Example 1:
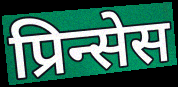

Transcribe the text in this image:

प्रिन्सेस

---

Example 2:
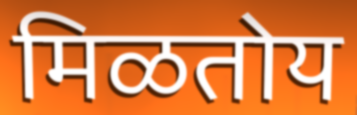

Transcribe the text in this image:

मिळतोय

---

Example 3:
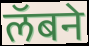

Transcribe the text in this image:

लॅबने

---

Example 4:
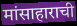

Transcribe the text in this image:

मांसाहाराची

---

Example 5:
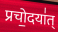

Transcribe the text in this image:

प्रचो॒दया॑त्